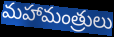
మహామంత్రులు